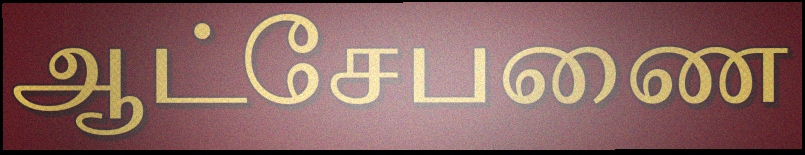
ஆட்சேபணை